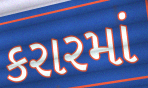
કરારમાં